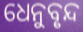
ଧେନୁବୃନ୍ଦ